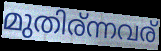
മുതിര്ന്നവര്